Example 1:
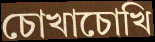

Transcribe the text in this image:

চোখাচোখি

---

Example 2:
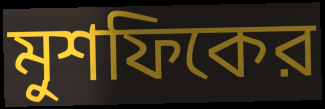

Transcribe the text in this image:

মুশফিকের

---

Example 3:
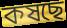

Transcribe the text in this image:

কষছে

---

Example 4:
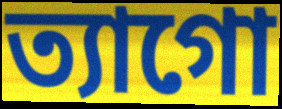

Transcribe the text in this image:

ত্যাগো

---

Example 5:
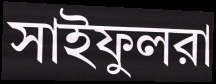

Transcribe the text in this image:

সাইফুলরা